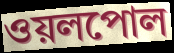
ওয়লপোল